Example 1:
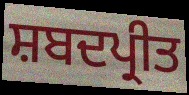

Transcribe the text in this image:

ਸ਼ਬਦਪ੍ਰੀਤ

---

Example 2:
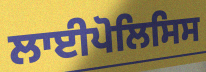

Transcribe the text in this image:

ਲਾਈਪੋਲਿਸਿਸ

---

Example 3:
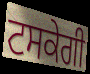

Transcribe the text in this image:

ਟਸਕੇਗੀ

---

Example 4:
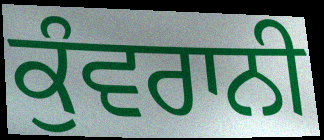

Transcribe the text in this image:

ਕੁੰਵਰਾਨੀ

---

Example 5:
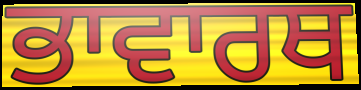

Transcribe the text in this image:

ਭਾਵਾਰਥ